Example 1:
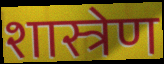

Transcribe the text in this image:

शास्त्रेण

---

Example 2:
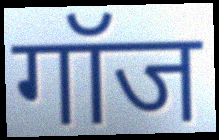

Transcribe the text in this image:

गॉज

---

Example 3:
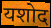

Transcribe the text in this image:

यशोद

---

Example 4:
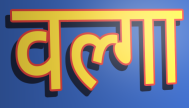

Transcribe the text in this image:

वल्गा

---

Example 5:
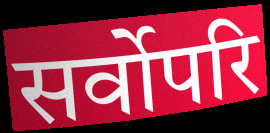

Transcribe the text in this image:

सर्वोपरि